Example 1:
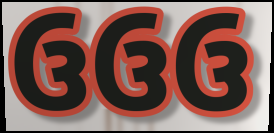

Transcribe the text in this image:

ઉઉઉ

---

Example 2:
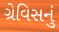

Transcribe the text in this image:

ગ્રેવિસનું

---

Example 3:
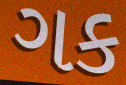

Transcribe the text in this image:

ગક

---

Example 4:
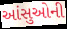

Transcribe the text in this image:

આંસુઓની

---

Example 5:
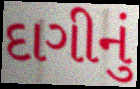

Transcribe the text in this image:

દાગીનું